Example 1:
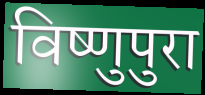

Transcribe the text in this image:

विष्णुपुरा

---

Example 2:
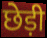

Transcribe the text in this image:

छेड़ी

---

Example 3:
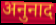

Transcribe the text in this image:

अनुनाद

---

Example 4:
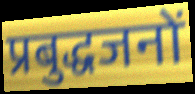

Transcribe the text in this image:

प्रबुद्धजनों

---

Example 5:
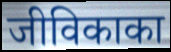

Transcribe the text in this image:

जीविकाका